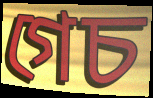
গেচ